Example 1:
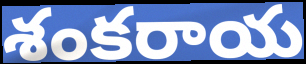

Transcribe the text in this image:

శంకరాయ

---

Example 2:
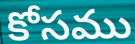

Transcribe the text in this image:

కోసము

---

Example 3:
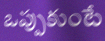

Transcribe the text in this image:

ఒప్పుకుంటే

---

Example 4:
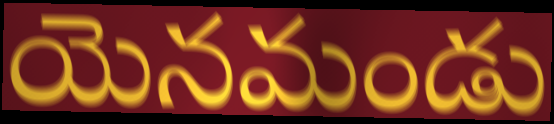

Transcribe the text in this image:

యెనమండు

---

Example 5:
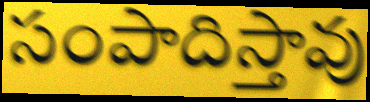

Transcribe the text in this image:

సంపాదిస్తావు